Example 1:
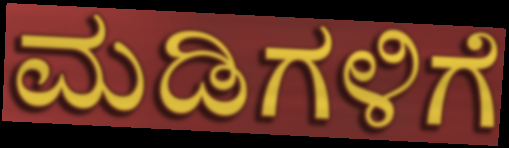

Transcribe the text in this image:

ಮಡಿಗಳಿಗೆ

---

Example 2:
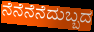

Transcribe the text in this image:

ನೆನೆನೆನೆದುಬ್ಬದ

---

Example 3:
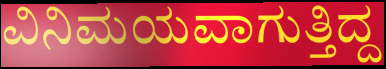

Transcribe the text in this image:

ವಿನಿಮಯವಾಗುತ್ತಿದ್ದ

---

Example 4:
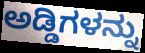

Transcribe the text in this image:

ಅಡ್ಡಿಗಳನ್ನು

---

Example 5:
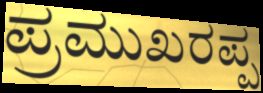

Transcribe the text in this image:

ಪ್ರಮುಖರಪ್ಪ